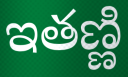
ఇతణ్ణి